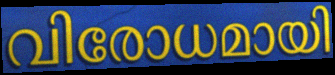
വിരോധമായി